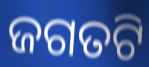
ଜଗତଟି